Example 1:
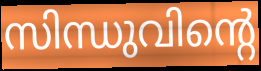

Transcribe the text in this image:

സിന്ധുവിന്റെ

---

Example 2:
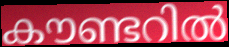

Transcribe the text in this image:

കൗണ്ടറിൽ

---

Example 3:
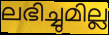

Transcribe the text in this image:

ലഭിച്ചുമില്ല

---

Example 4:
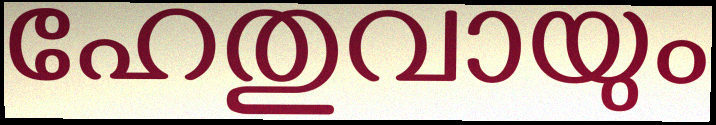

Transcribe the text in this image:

ഹേതുവായും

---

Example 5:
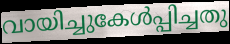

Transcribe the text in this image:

വായിച്ചുകേൾപ്പിച്ചതു